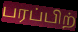
பரப்பிற்